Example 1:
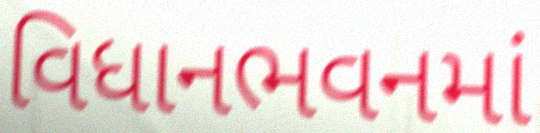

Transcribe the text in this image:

વિધાનભવનમાં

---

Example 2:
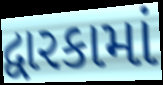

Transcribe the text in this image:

દ્વારકામાં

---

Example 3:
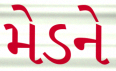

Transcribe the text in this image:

મેડને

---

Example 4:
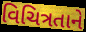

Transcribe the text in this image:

વિચિત્રતાને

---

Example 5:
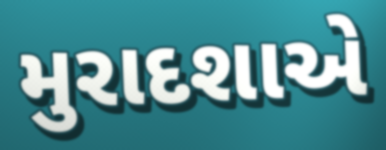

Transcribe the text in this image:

મુરાદશાએ